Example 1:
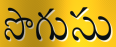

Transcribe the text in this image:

సొగుసు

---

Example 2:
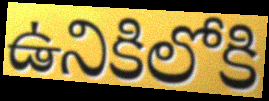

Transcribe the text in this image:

ఉనికిలోకి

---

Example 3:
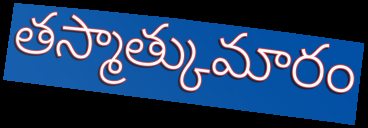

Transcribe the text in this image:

తస్మాత్కుమారం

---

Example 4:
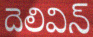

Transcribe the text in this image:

దెలివిన్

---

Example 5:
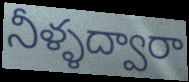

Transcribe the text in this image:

నీళ్ళద్వారా